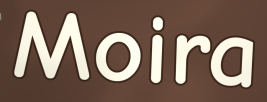
Moira